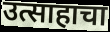
उत्साहाचा